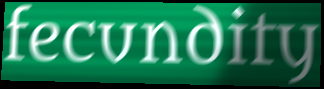
fecundity